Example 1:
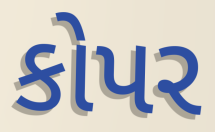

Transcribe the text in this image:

કોપર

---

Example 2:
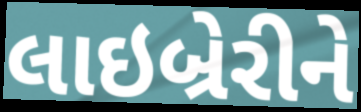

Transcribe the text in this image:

લાઇબ્રેરીને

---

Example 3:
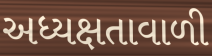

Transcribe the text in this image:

અધ્યક્ષતાવાળી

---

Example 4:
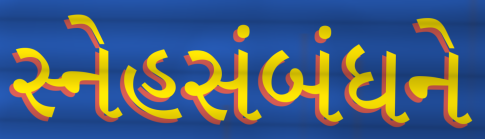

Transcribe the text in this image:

સ્નેહસંબંધને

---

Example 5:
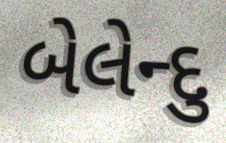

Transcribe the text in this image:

બેલેન્દુ